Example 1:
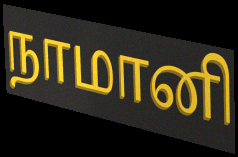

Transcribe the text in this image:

நாமானி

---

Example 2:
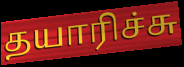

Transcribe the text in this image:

தயாரிச்சு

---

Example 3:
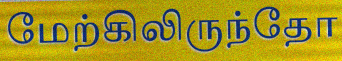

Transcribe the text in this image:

மேற்கிலிருந்தோ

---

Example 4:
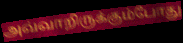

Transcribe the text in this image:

அவ்வாறிருக்கும்போது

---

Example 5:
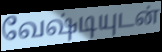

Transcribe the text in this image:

வேஷ்டியுடன்